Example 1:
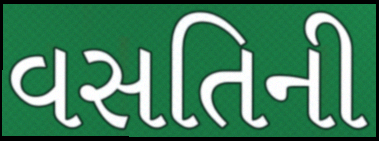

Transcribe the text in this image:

વસતિની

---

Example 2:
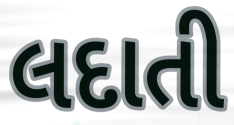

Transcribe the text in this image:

લદાતી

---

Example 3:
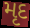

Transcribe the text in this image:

મૃદ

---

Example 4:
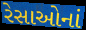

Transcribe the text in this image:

રેસાઓનાં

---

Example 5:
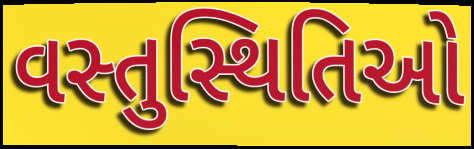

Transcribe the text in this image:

વસ્તુસ્થિતિઓ